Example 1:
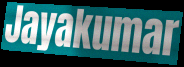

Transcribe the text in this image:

Jayakumar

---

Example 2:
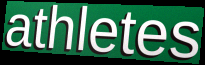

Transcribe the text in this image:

athletes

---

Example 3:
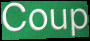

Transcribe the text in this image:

Coup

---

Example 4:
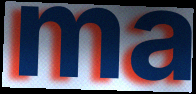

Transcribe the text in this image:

ma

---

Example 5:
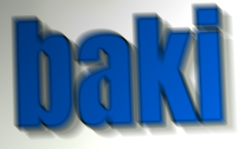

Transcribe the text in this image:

baki